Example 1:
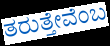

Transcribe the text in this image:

ತರುತ್ತೇವೆಂಬ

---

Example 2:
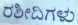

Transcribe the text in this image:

ರಶೀದಿಗಳು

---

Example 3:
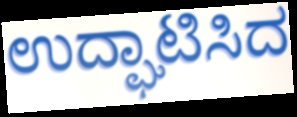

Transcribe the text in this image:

ಉದ್ಘಾಟಿಸಿದ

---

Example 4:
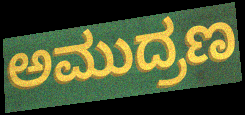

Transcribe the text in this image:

ಅಮುದ್ರಣ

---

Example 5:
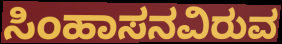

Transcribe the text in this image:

ಸಿಂಹಾಸನವಿರುವ